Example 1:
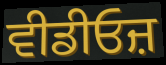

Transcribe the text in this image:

ਵੀਡੀਓਜ਼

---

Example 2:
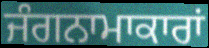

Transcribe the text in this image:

ਜੰਗਨਾਮਾਕਾਰਾਂ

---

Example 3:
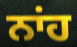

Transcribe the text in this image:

ਨਾਂਹ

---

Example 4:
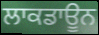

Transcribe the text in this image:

ਲਾਕਡਾਊਨ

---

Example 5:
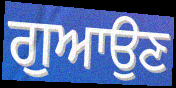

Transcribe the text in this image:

ਗੁਆਉਣ